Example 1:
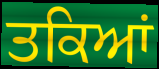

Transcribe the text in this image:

ਤਕਿਆਂ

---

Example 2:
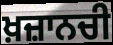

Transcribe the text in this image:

ਖ਼ਜ਼ਾਨਚੀ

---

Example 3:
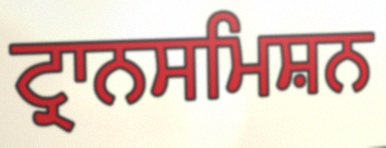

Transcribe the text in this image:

ਟ੍ਰਾਨਸਮਿਸ਼ਨ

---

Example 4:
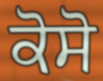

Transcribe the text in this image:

ਕੋਸੋ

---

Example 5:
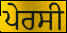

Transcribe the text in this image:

ਪੇਰਸੀ